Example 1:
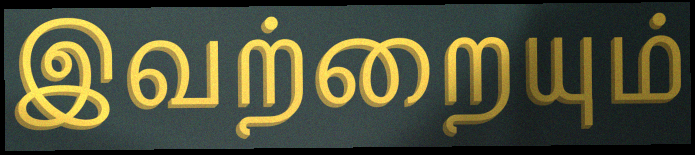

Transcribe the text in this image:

இவற்றையும்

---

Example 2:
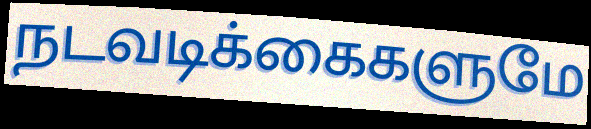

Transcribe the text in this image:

நடவடிக்கைகளுமே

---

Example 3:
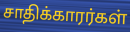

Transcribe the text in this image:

சாதிக்காரர்கள்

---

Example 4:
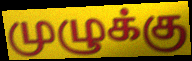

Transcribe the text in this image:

முழுக்கு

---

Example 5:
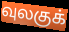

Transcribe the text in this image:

வுலகுக்